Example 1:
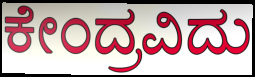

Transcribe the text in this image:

ಕೇಂದ್ರವಿದು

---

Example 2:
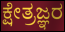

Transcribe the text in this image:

ಕ್ಷೇತ್ರಜ್ಞರ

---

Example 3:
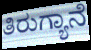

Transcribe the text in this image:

ತಿರುಗ್ಯಾನೆ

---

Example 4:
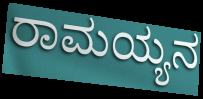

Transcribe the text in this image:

ರಾಮಯ್ಯನ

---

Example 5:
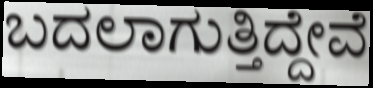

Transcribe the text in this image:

ಬದಲಾಗುತ್ತಿದ್ದೇವೆ